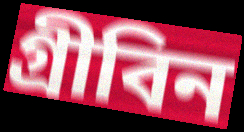
গ্রীবিন